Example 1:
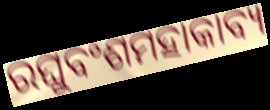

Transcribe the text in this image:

ରଘୁବଂଶମହାକାବ୍ୟ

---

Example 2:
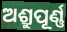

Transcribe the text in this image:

ଅଶ୍ରୁପୂର୍ଣ୍ଣ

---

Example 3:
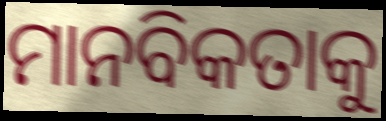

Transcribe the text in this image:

ମାନବିକତାକୁ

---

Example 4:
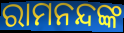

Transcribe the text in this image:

ରାମନନ୍ଦଙ୍କ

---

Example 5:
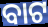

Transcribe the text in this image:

ବାଟ